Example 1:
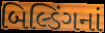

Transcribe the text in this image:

બિલ્ડિંગનાં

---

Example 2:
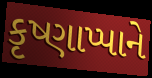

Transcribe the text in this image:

કૃષ્ણાપ્પાને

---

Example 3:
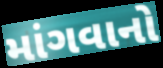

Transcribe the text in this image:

માંગવાનો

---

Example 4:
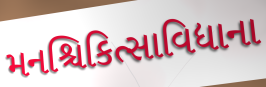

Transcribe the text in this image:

મનશ્ચિકિત્સાવિદ્યાના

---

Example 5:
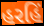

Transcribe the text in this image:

હરહિં